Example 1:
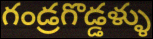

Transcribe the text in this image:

గండ్రగొడ్డళ్ళు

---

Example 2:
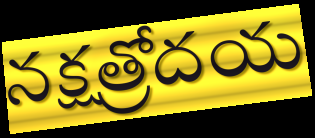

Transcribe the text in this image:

నక్షత్రోదయ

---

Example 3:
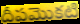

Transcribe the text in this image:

దీపమొకటి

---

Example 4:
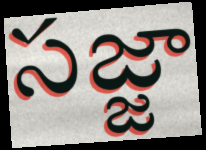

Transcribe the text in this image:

సజ్జా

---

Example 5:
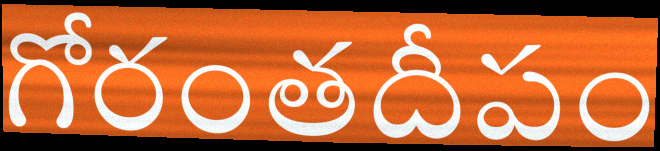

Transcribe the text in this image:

గోరంతదీపం